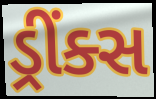
ડ્રીંક્સ